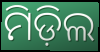
ମିଡ଼ିଲ